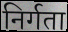
निर्गता